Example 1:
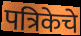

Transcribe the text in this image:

पत्रिकेचे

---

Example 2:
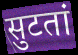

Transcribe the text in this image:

सुटतां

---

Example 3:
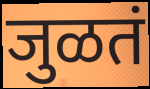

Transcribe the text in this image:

जुळतं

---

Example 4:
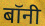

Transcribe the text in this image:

बॉनी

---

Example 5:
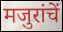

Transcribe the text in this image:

मजुरांचें